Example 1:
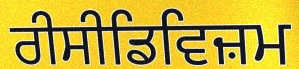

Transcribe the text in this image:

ਰੀਸੀਡਿਵਿਜ਼ਮ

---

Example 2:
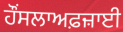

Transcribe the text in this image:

ਹੌਂਸਲਾਅਫ਼ਜ਼ਾਈ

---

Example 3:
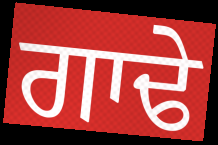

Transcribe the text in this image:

ਗਾਢੇ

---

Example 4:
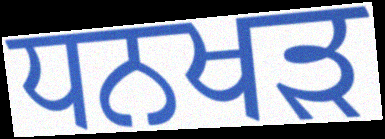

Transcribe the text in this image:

ਧਨਖਡ਼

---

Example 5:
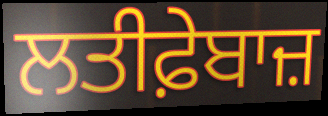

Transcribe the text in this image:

ਲਤੀਫ਼ੇਬਾਜ਼